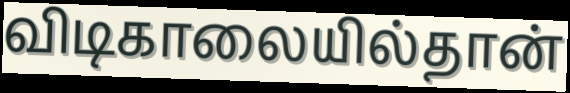
விடிகாலையில்தான்